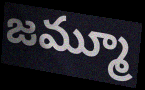
జమ్మూ